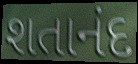
શતાનંદ